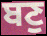
ਬਣੁ